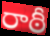
రాఠీ